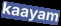
kaayam